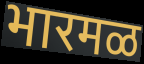
भारमळ